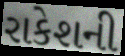
રાકેશની